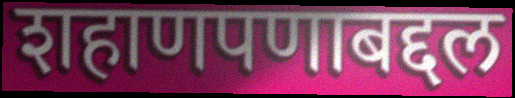
शहाणपणाबद्दल